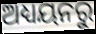
ଅଧ୍ୟୟନରୁ